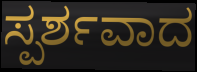
ಸ್ಪರ್ಶವಾದ